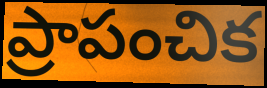
ప్రాపంచిక